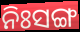
ନିଃସଙ୍ଗ